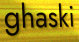
ghaski